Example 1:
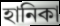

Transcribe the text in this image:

হানিকা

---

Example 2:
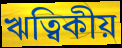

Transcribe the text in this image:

ঋত্বিকীয়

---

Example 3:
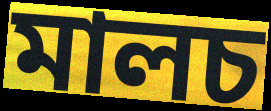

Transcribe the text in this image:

মালচ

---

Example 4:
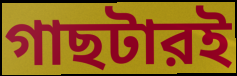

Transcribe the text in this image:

গাছটারই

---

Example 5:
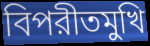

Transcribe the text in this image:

বিপরীতমুখি